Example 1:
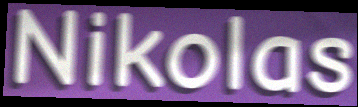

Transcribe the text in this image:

Nikolas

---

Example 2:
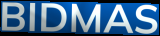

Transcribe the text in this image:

BIDMAS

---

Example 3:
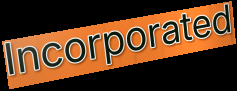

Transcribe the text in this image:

Incorporated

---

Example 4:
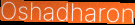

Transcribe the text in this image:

Oshadharon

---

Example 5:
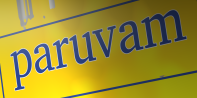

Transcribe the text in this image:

paruvam